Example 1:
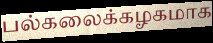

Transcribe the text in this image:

பல்கலைக்கழகமாக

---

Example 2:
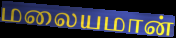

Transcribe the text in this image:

மலையமான்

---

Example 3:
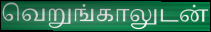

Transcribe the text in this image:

வெறுங்காலுடன்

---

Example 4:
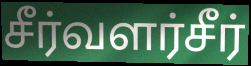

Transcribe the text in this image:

சீர்வளர்சீர்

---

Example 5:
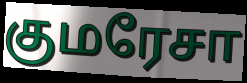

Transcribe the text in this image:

குமரேசா